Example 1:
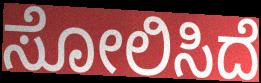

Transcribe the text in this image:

ಸೋಲಿಸಿದೆ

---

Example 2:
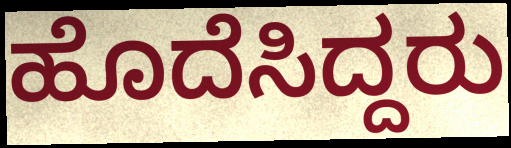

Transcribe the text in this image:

ಹೊದೆಸಿದ್ದರು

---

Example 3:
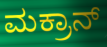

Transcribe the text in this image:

ಮಕ್ರಾನ್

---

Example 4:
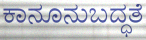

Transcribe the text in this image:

ಕಾನೂನುಬದ್ಧತೆ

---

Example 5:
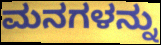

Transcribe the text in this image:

ಮನಗಳನ್ನು